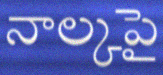
నాల్కపై